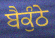
ਬੈਕੁੰਠੇ